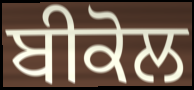
ਬੀਕੋਲ